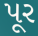
પૂર